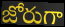
జోరుగా